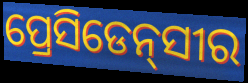
ପ୍ରେସିଡେନ୍‌ସୀର